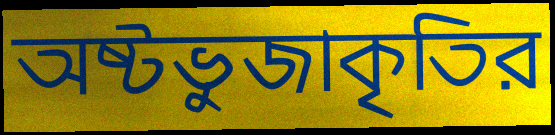
অষ্টভুজাকৃতির